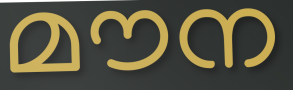
മൗന